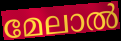
മേലാൽ